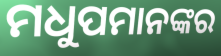
ମଧୁପମାନଙ୍କର